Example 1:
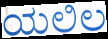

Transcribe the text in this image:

ಯಲಿಲ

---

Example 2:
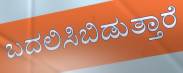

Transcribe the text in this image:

ಬದಲಿಸಿಬಿಡುತ್ತಾರೆ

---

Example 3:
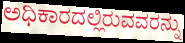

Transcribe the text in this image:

ಅಧಿಕಾರದಲ್ಲಿರುವವರನ್ನು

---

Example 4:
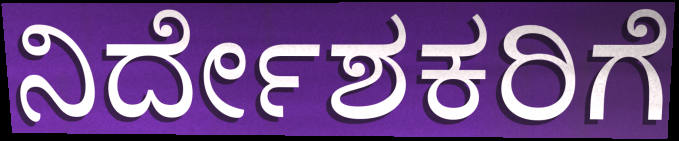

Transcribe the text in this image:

ನಿರ್ದೇಶಕರಿಗೆ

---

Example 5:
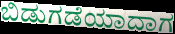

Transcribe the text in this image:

ಬಿಡುಗಡೆಯಾದಾಗ